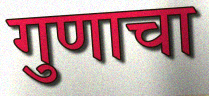
गुणाचा